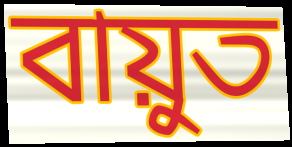
বায়ুত